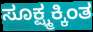
ಸೂಕ್ಷ್ಮಕ್ಕಿಂತ